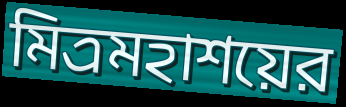
মিত্রমহাশয়ের